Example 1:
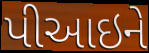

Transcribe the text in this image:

પીઆઇને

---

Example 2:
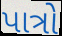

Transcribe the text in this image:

પાત્રો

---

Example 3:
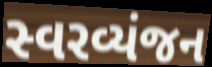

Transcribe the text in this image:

સ્વરવ્યંજન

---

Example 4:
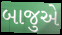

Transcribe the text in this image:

બાજુએ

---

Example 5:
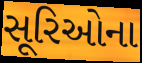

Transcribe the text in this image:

સૂરિઓના